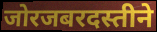
जोरजबरदस्तीने